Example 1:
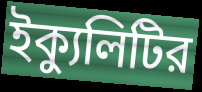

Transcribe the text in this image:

ইক্যুলিটির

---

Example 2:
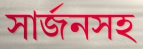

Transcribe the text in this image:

সার্জনসহ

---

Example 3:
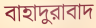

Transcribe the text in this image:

বাহাদুরাবাদ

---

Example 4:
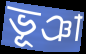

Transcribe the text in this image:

ভূঞা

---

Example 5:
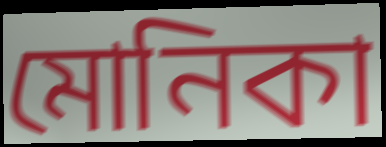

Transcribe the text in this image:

মোনিকা